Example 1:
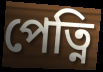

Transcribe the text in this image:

পেত্নি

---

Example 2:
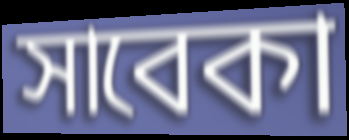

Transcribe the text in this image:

সাবেকা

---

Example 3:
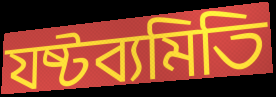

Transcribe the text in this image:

যষ্টব্যমিতি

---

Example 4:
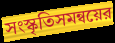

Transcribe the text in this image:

সংস্কৃতিসমন্বয়ের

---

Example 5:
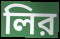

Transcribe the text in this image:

লির